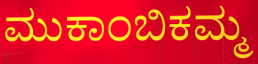
ಮುಕಾಂಬಿಕಮ್ಮ